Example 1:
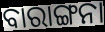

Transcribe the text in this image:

ବାରାଙ୍ଗନା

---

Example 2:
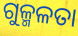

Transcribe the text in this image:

ଗୁଳ୍ମଳତା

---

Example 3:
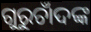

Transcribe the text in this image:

ଗୁରୁଚାଁଦଙ୍କ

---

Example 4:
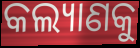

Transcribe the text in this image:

କଲ୍ୟାଣକୁ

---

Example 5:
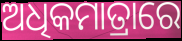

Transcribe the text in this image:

ଅଧିକମାତ୍ରାରେ